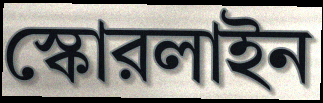
স্কোরলাইন